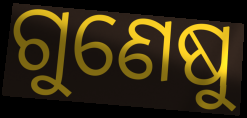
ଗୁଣେଷୁ